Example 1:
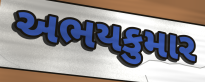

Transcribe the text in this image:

અભયકુમાર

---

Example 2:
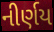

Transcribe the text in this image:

નીર્ણય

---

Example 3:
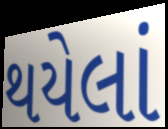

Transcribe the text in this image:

થયેલાં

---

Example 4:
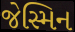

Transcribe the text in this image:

જેસ્મિન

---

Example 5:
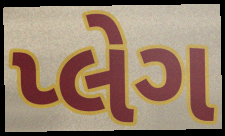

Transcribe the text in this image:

પ્લેગ